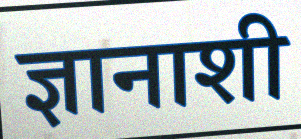
ज्ञानाशी